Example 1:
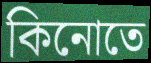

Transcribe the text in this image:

কিনোতে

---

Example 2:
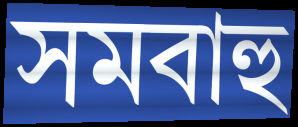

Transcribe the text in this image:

সমবাহু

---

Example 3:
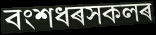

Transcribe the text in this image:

বংশধৰসকলৰ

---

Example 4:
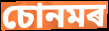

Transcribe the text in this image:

চোনমৰ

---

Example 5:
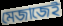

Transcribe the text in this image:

মেজাজেই